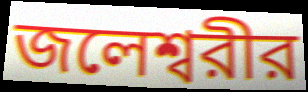
জলেশ্বরীর